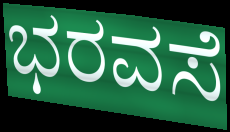
ಭರವಸೆ